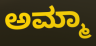
ಅಮ್ಮಾ